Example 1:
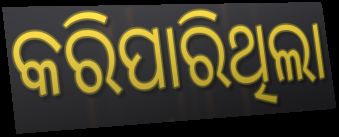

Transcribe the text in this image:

କରିପାରିଥିଲା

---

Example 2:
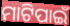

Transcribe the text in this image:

ମାଟିପାଇଁ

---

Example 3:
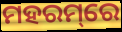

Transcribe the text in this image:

ମହରମ୍‌ରେ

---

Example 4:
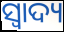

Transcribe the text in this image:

ସ୍ଵାଦ୍ୟ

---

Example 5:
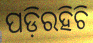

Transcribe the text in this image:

ପଡ଼ିରହିଚି